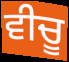
ਵੀਚੂ